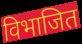
विभाजित